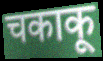
चकाकू